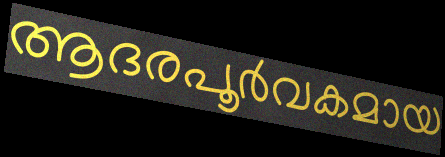
ആദരപൂർവകമായ